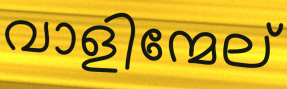
വാളിന്മേല്